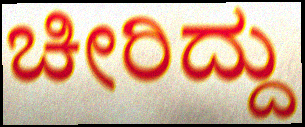
ಚೀರಿದ್ದು